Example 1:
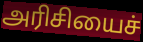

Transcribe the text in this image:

அரிசியைச்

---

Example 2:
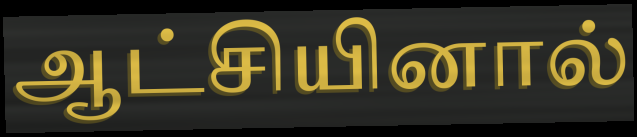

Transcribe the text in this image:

ஆட்சியினால்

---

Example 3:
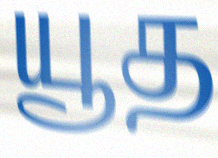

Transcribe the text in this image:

யூத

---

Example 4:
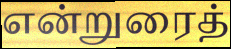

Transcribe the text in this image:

என்றுரைத்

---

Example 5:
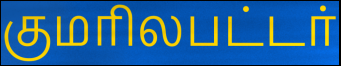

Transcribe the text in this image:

குமரிலபட்டர்